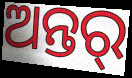
ଅନ୍ତର୍